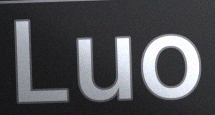
Luo